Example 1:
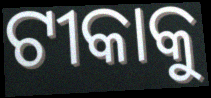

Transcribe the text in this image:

ଟୀକାକୁ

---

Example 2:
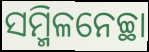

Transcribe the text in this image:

ସମ୍ମିଳନେଚ୍ଛା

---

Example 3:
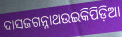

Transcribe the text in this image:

ଦାସଜଗନ୍ନାଥଉଇକିପିଡ଼ିଆ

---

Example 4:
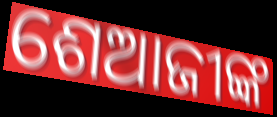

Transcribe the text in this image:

ଶେଆଜୀଙ୍କ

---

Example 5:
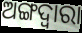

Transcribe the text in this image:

ଅଙ୍ଗଦ୍ଵାରା